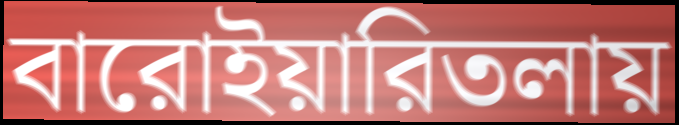
বারোইয়ারিতলায়